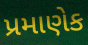
પ્રમાણેક